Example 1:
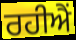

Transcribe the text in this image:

ਰਹੀਐਂ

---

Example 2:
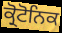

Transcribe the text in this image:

ਕ੍ਰੋਟੋਨਿਕ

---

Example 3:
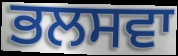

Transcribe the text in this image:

ਭਲਸਵਾ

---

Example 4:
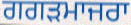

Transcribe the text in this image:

ਗਗੜਮਾਜਰਾ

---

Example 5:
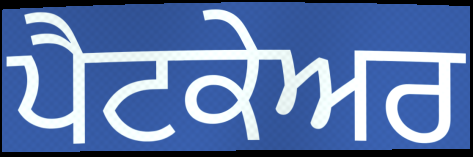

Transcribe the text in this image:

ਪੈਟਕੇਅਰ